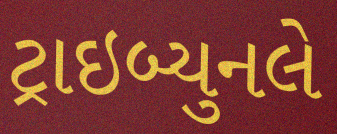
ટ્રાઇબ્યુનલે